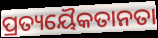
ପ୍ରତ୍ୟୟୈକତାନତା